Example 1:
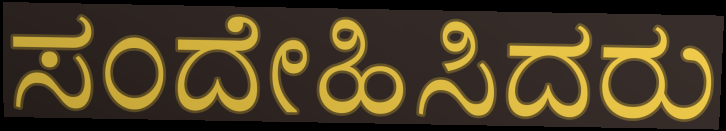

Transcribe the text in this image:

ಸಂದೇಹಿಸಿದರು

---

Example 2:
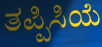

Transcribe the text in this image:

ತಪ್ಪಿಸಿಯೆ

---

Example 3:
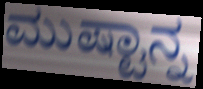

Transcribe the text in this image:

ಮುಷ್ಟಾನ್ನ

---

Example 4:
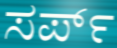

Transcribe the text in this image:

ಸರ್ಪ್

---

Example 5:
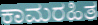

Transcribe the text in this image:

ಕಾಮರಹಿತ